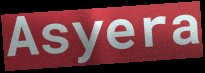
Asyera